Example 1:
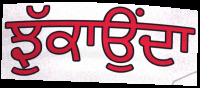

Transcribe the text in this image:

ਝੁੱਕਾਉਂਦਾ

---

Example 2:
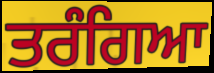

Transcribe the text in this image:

ਤਰੰਗਿਆ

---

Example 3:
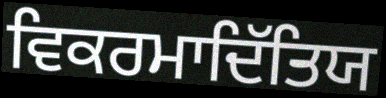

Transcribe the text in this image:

ਵਿਕਰਮਾਦਿੱਤਿਯ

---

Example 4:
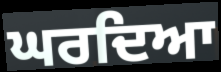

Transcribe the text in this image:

ਘਰਦਿਆ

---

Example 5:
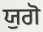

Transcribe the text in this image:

ਯੁਗੋ